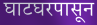
घाटघरपासून